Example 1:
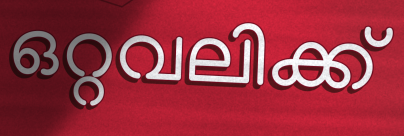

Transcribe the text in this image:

ഒറ്റവലിക്ക്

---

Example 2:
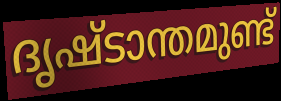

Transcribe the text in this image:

ദൃഷ്ടാന്തമുണ്ട്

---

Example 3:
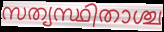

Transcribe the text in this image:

സത്യസ്ഥിതാശ്ച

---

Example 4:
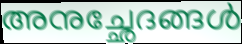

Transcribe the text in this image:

അനുച്ഛേദങ്ങൾ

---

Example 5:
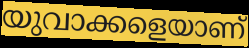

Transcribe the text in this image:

യുവാക്കളെയാണ്